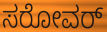
ಸರೋವರ್